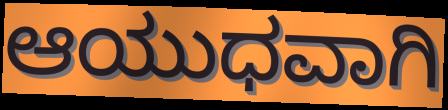
ಆಯುಧವಾಗಿ